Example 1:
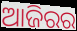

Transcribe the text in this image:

ଆଜିରର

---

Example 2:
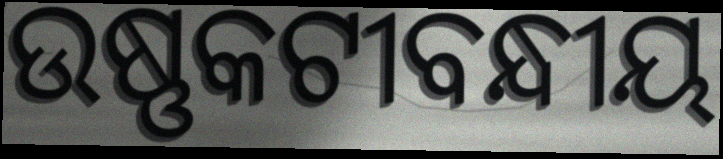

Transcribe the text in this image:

ଉଷ୍ଣକଟୀବନ୍ଧୀୟ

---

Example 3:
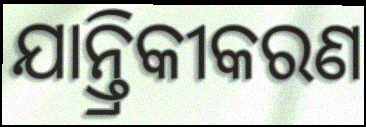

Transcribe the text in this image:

ଯାନ୍ତ୍ରିକୀକରଣ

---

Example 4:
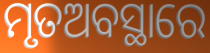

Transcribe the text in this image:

ମୃତଅବସ୍ଥାରେ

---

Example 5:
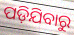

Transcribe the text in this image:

ପଡ଼ିଯିବାରୁ